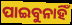
ପାଇବୁନାହିଁ